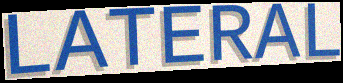
LATERAL